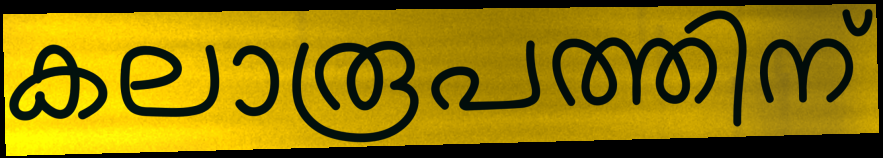
കലാരൂപത്തിന്